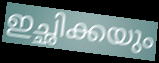
ഇച്ഛിക്കയും